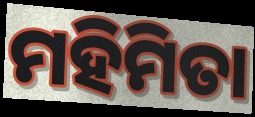
ମହିମିତା